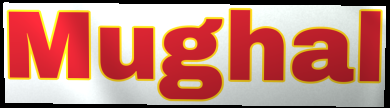
Mughal